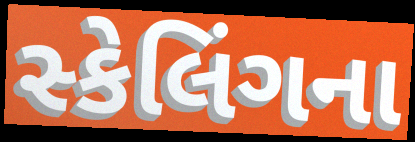
સ્કેલિંગના